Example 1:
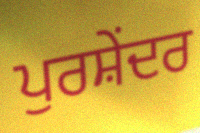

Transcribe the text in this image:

ਪੁਰਸ਼ੇਂਦਰ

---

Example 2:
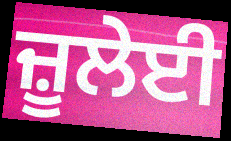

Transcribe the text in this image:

ਜ਼ੂਲੇਈ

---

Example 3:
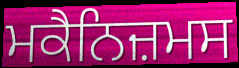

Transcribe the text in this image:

ਮਕੈਨਿਜ਼ਮਸ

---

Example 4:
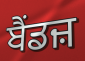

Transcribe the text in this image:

ਬੈਂਡਜ਼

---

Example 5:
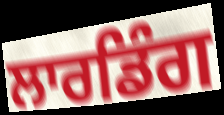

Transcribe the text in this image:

ਲਾਰਡਿੰਗ